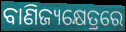
ବାଣିଜ୍ୟକ୍ଷେତ୍ରରେ